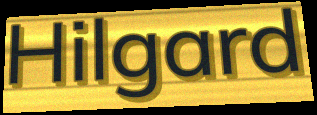
Hilgard